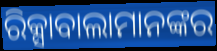
ରିକ୍ସାବାଲାମାନଙ୍କର